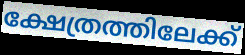
ക്ഷേത്രത്തിലേക്ക്